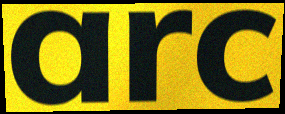
arc